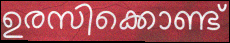
ഉരസിക്കൊണ്ട്